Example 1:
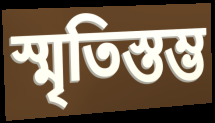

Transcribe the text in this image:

স্মৃতিস্তম্ভ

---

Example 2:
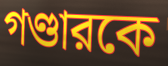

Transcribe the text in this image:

গণ্ডারকে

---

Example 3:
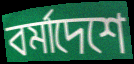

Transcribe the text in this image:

বর্মাদেশে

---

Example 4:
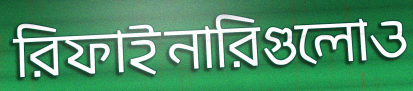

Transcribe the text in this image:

রিফাইনারিগুলোও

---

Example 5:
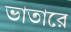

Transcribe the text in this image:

ভাতারে